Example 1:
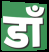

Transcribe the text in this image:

डॉं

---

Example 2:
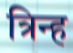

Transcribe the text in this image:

त्रिन्ह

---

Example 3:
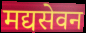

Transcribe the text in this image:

मद्यसेवन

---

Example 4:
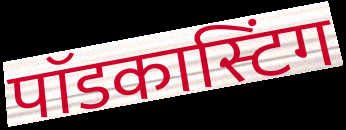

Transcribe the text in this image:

पॉडकास्टिंग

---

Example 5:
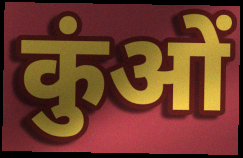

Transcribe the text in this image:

कुंओं